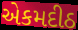
એકમદીઠ